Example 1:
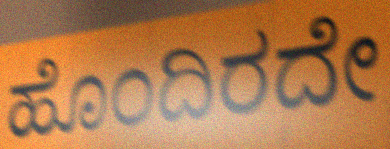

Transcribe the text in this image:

ಹೊಂದಿರದೇ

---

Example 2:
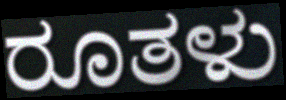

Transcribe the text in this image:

ರೂತಳು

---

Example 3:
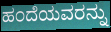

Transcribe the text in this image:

ಹಂದೆಯವರನ್ನು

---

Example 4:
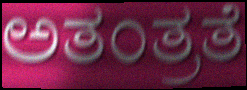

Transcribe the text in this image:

ಅತಂತ್ರತೆ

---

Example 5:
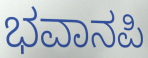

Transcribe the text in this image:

ಭವಾನಪಿ